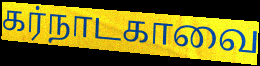
கர்நாடகாவை